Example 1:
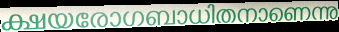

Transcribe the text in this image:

ക്ഷയരോഗബാധിതനാണെന്നു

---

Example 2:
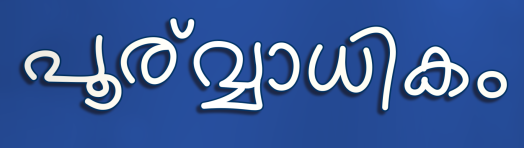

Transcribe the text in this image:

പൂര്വ്വാധികം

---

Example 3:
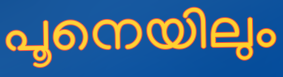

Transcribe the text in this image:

പൂനെയിലും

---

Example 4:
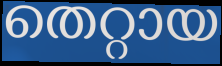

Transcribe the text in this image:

തെറ്റായ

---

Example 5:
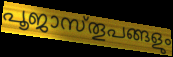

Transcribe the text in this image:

പൂജാസ്‌തൂപങ്ങളും